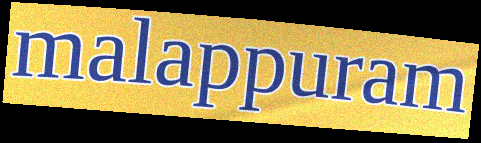
malappuram